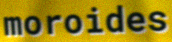
moroides